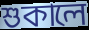
শুকালে